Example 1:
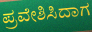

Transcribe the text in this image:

ಪ್ರವೇಶಿಸಿದಾಗ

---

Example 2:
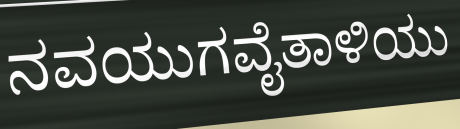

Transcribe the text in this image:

ನವಯುಗವೈತಾಳಿಯು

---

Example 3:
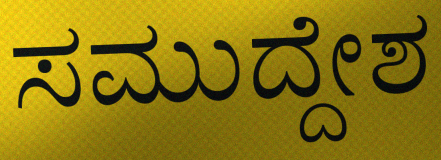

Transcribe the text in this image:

ಸಮುದ್ದೇಶ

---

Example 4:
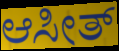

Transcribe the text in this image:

ಆಸೀತ್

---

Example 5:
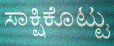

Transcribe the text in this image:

ಸಾಕ್ಷಿಕೊಟ್ಟು